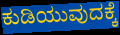
ಕುಡಿಯುವುದಕ್ಕೆ